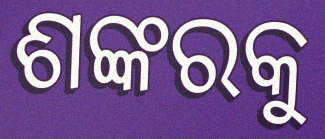
ଶଙ୍କରକୁ